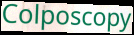
Colposcopy